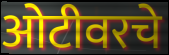
ओटीवरचे